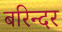
बरिन्दर